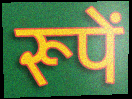
रूपें